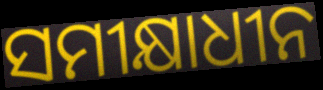
ସମୀକ୍ଷାଧୀନ